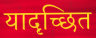
यादृच्छित